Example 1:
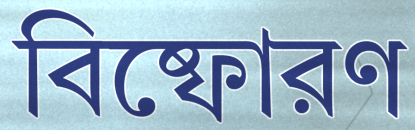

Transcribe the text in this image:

বিষ্ফোরণ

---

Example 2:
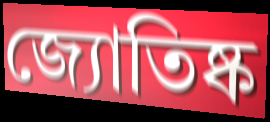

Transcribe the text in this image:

জ্যোতিষ্ক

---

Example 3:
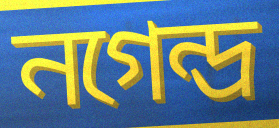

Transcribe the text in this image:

নগেন্দ্র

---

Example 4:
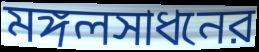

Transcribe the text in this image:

মঙ্গলসাধনের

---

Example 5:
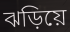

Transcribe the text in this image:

ঝড়িয়ে